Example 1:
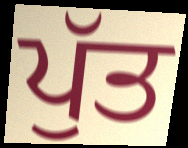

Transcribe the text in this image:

ਪੁੱਤ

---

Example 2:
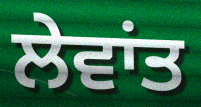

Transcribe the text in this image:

ਲੇਵਾਂਤ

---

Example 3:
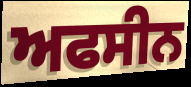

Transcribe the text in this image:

ਅਫਸੀਨ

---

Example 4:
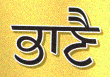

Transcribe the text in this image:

ਭਾਣੈ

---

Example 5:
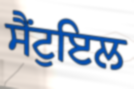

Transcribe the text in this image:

ਸੈਂਟੁਇਲ